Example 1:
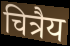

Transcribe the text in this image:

चित्रैय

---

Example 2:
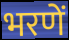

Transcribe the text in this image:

भरणें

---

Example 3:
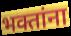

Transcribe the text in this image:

भक्तांना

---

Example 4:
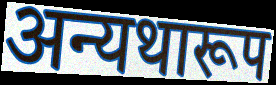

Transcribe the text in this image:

अन्यथारूप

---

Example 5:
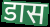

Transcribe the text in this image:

डास